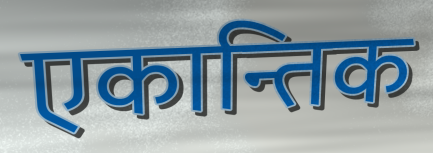
एकान्तिक